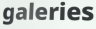
galeries